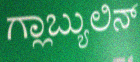
ಗ್ಲಾಬ್ಯುಲಿನ್